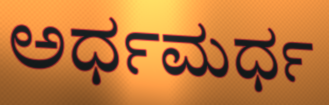
ಅರ್ಧಮರ್ಧ